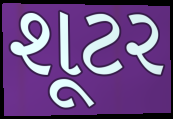
શૂટર